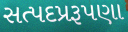
સત્પદપ્રરૂપણા